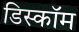
डिस्कॉम